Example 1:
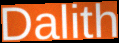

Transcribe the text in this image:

Dalith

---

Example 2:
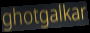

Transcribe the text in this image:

ghotgalkar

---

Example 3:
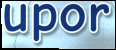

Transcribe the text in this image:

upor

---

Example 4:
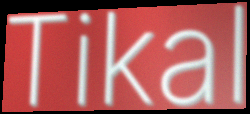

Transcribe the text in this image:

Tikal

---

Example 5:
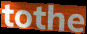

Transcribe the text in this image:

tothe